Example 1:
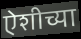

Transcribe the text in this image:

ऐशीच्या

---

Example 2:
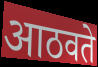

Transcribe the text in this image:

आठवते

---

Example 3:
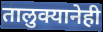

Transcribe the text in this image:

तालुक्यानेही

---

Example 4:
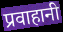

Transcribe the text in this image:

प्रवाहानी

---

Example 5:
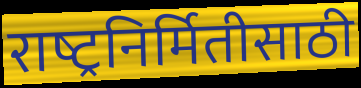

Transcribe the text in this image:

राष्ट्रनिर्मितीसाठी